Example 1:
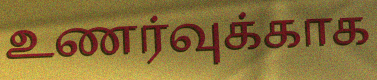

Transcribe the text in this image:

உணர்வுக்காக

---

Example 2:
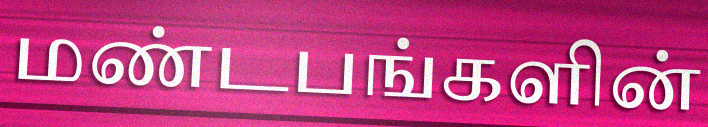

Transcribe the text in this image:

மண்டபங்களின்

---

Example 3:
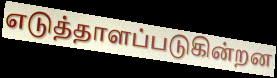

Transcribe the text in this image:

எடுத்தாளப்படுகின்றன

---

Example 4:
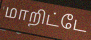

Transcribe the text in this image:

மாறிட்டே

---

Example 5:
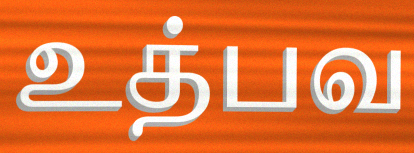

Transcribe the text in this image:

உத்பவ